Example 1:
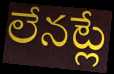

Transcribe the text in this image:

లేనట్లే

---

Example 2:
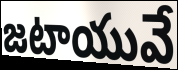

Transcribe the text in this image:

జటాయువే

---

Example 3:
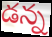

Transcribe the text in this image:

డన్న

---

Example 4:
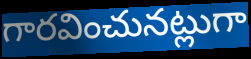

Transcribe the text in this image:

గారవించునట్లుగా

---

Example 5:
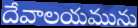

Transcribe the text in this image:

దేవాలయమును